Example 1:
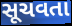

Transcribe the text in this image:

સૂચવતા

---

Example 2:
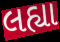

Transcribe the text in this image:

લહ્યા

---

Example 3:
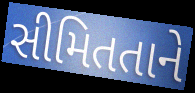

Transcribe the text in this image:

સીમિતતાને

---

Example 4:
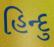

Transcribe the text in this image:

હિન્દુ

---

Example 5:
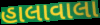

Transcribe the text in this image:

હાલાવાલા